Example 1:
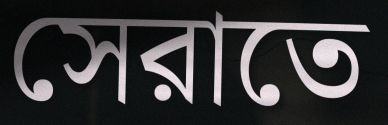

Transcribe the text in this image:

সেরাতে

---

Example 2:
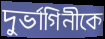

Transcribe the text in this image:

দুর্ভাগিনীকে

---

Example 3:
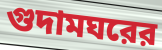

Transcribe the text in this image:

গুদামঘরের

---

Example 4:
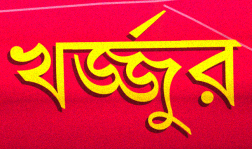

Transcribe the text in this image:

খর্জ্জুর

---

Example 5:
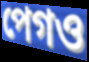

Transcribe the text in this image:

পেগও